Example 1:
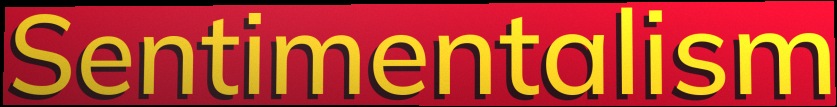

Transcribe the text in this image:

Sentimentalism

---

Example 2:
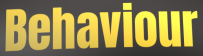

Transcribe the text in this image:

Behaviour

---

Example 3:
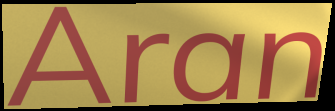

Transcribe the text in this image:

Aran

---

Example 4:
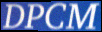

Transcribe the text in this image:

DPCM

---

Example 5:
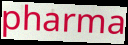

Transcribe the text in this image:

pharma